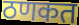
ठणकत